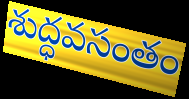
శుద్ధవసంతం